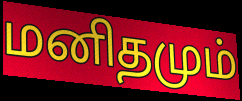
மனிதமும்